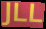
JLL